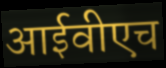
आईवीएच